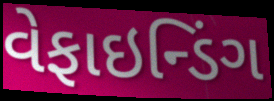
વેફાઇન્ડિંગ